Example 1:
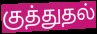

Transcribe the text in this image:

குத்துதல்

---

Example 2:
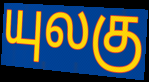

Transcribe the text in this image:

யுலகு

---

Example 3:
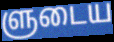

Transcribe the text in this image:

ளுடைய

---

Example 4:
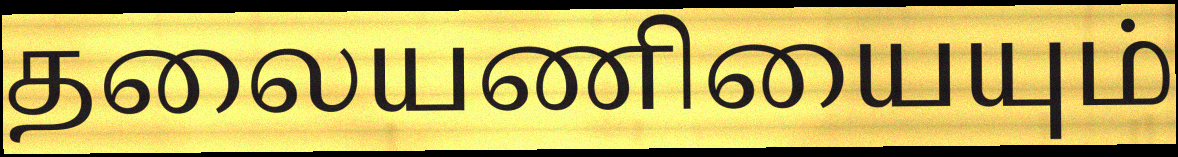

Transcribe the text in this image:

தலையணியையும்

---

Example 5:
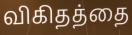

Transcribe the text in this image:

விகிதத்தை